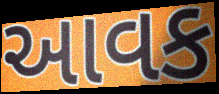
આવક